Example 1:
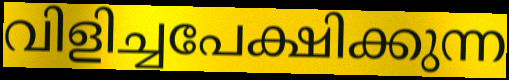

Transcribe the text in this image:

വിളിച്ചപേക്ഷിക്കുന്ന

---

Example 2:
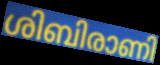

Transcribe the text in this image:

ശിബിരാണി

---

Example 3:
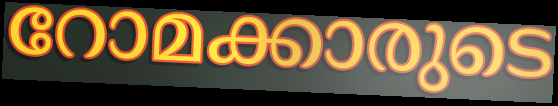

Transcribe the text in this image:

റോമക്കാരുടെ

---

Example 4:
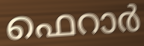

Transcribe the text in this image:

ഫെറാർ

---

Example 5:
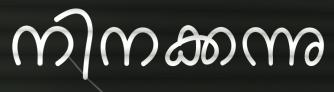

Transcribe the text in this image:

നിനക്കന്നു